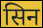
सिन